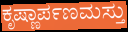
ಕೃಷ್ಣಾರ್ಪಣಮಸ್ತು